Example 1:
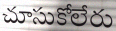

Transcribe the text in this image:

చూసుకోలేరు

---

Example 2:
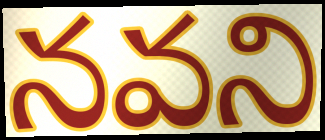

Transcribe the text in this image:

నవని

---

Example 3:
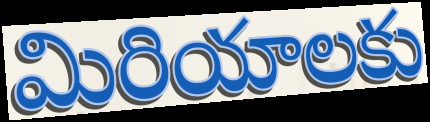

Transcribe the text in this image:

మిరియాలకు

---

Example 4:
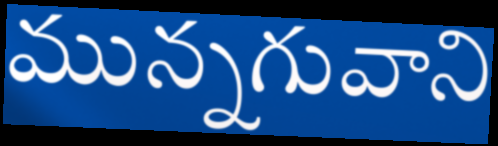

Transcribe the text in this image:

మున్నగువాని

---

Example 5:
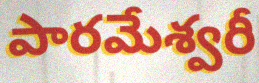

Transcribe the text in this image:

పారమేశ్వరీ